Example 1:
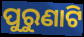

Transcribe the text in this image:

ପୁରୁଣାଟି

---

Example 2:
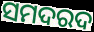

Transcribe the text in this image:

ସମଦରଦ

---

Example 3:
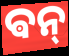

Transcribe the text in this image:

ଵନ୍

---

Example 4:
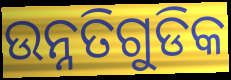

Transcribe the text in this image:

ଉନ୍ନତିଗୁଡିକ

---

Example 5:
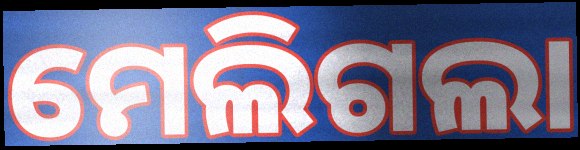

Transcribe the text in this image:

ମେଲିଗଲା